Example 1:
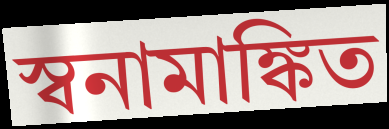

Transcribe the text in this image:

স্বনামাঙ্কিত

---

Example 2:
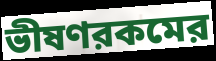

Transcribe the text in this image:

ভীষণরকমের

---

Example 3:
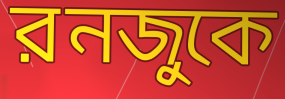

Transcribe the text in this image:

রনজুকে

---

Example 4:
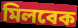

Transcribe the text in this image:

মিলবেক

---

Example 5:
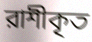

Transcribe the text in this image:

রাশীকৃত